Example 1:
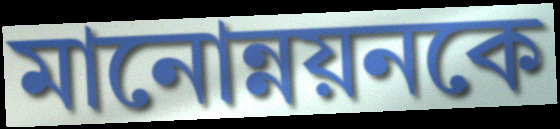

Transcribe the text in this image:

মানোন্নয়নকে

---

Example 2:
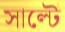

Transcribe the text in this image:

সাল্টে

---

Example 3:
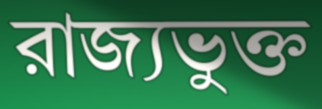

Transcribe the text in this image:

রাজ্যভুক্ত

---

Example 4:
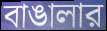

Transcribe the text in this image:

বাঙালার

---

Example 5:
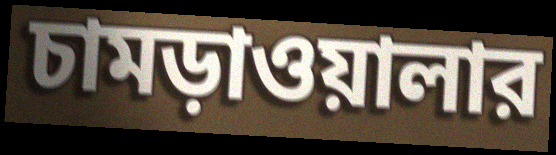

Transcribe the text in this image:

চামড়াওয়ালার